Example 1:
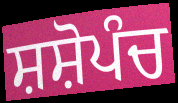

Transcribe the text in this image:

ਸ਼ਸ਼ੋਪੰਚ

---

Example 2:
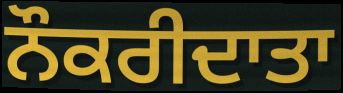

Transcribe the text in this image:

ਨੌਕਰੀਦਾਤਾ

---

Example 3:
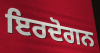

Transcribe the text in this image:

ਇਰਦੋਗਨ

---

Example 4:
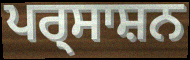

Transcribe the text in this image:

ਪਰ੍ਸਾਸ਼ਨ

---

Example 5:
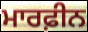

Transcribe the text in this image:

ਮਾਰਫ਼ੀਨ